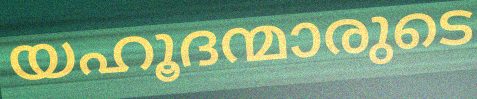
യഹൂദന്മാരുടെ